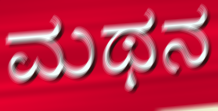
ಮಥನ